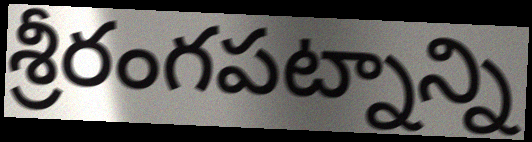
శ్రీరంగపట్నాన్ని